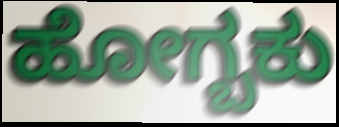
ಹೋಗ್ಬಕು